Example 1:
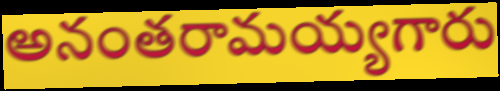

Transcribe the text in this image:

అనంతరామయ్యగారు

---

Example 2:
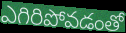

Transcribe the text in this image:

ఎగిరిపోవడంతో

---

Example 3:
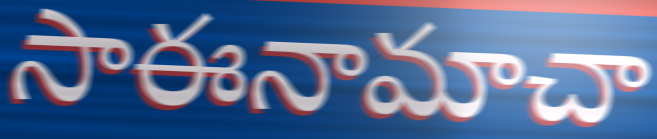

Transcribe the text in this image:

సాఈనామాచా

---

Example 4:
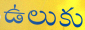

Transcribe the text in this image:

ఉలుకు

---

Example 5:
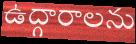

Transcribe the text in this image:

ఉద్గారాలను